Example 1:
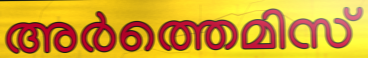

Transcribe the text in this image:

അർത്തെമിസ്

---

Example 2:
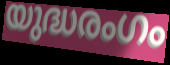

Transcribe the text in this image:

യുദ്ധരംഗം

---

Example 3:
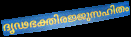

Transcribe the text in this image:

ദൃഢഭക്തിരജ്ജുസഹിതം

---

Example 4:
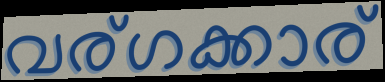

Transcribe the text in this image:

വര്ഗക്കാര്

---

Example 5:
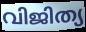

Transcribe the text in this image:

വിജിത്യ